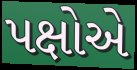
પક્ષોએ